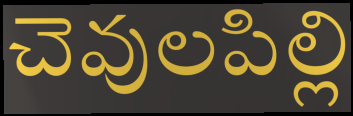
చెవులపిల్లి